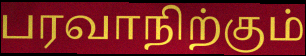
பரவாநிற்கும்